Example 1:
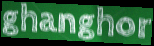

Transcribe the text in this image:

ghanghor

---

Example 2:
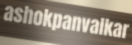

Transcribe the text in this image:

ashokpanvalkar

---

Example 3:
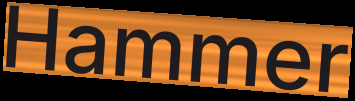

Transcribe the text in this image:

Hammer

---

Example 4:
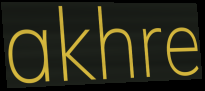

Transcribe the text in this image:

akhre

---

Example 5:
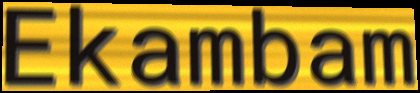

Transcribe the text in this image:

Ekambam